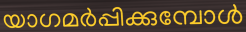
യാഗമർപ്പിക്കുമ്പോൾ